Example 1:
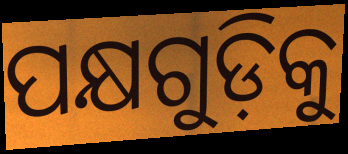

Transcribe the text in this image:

ପକ୍ଷଗୁଡ଼ିକୁ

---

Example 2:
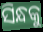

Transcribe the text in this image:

ସିନ୍ଧକୁ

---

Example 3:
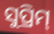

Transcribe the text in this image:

ସୁପ୍ରିମ୍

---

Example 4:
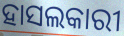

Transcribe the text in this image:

ହାସଲକାରୀ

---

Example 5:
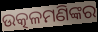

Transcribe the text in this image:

ଉତ୍କଳମଣିଙ୍କର